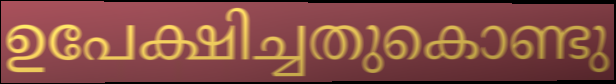
ഉപേക്ഷിച്ചതുകൊണ്ടു